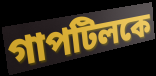
গাপটিলকে